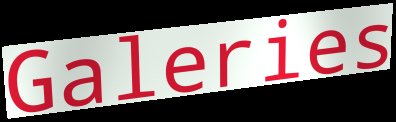
Galeries